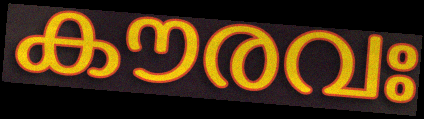
കൗരവഃ